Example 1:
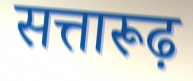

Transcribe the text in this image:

सत्तारूढ़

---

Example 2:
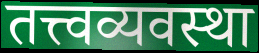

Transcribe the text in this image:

तत्त्वव्यवस्था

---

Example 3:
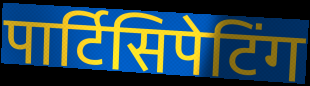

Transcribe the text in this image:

पार्टिसिपेटिंग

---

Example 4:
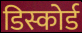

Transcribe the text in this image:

डिस्कोर्ड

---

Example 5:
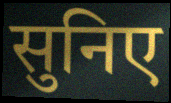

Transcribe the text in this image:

सुनिए